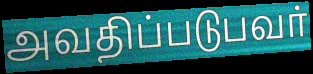
அவதிப்படுபவர்